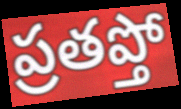
ప్రతప్తో